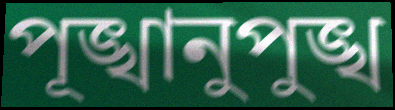
পূঙ্খানুপুঙ্খ